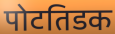
पोटतिडक